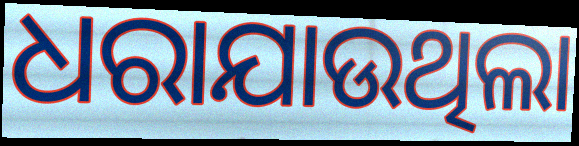
ଧରାଯାଉଥିଲା